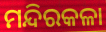
ମନ୍ଦିରକଳା